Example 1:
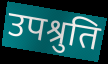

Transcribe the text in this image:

उपश्रुति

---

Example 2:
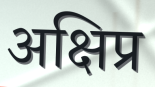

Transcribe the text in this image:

अक्षिप्र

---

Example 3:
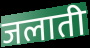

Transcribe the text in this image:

जलाती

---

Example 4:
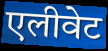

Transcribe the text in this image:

एलीवेट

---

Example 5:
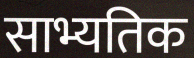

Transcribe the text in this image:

साभ्यतिक